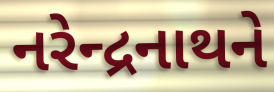
નરેન્દ્રનાથને